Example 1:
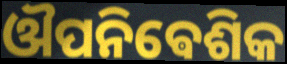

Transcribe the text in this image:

ଔପନିଵେଶିକ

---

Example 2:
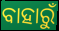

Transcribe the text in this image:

ବାହାରୁଁ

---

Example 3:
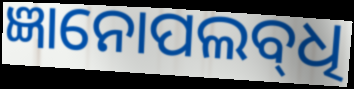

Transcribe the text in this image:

ଜ୍ଞାନୋପଲବ୍‌ଧି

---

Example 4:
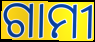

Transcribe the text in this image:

ଗାମୀ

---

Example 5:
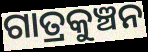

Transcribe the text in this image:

ଗାତ୍ରକୁଞ୍ଚନ